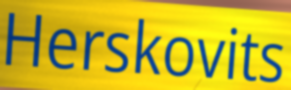
Herskovits